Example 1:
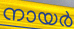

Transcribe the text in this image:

നായർ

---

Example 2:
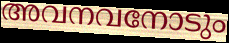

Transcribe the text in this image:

അവനവനോടും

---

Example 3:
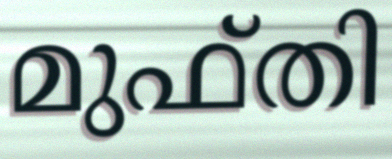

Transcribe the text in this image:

മുഫ്തി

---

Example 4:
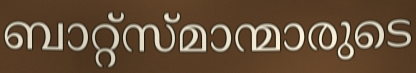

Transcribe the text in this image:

ബാറ്റ്സ്മാന്മാരുടെ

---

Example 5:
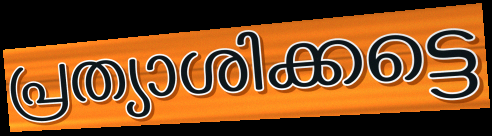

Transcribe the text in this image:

പ്രത്യാശിക്കട്ടെ